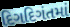
દિગદિગંતમાં